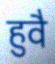
हुवै